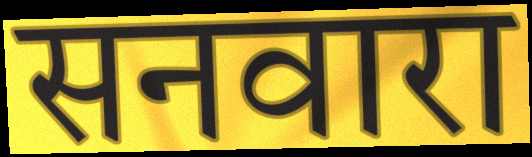
सनवारा